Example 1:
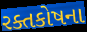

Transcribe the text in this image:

રક્તકોષના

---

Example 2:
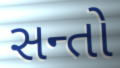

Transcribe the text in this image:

સન્તો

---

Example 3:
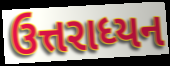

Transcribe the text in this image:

ઉત્તરાધ્યન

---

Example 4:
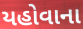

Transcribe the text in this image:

યહોવાના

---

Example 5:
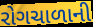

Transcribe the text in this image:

રોગચાળાની